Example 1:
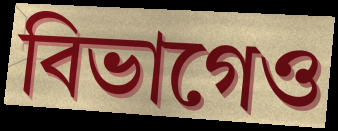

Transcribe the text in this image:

বিভাগেও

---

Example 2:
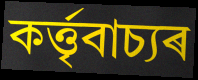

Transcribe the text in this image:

কৰ্ত্তৃবাচ্যৰ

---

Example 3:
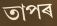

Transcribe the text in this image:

তাপৰ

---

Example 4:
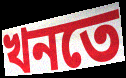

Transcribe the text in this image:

খনতে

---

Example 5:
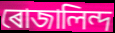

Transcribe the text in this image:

ৰোজালিন্দ